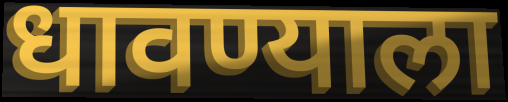
धावण्याला